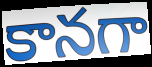
కానగా